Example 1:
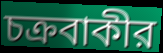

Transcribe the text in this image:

চক্রবাকীর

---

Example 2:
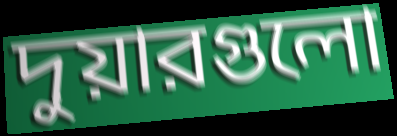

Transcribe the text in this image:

দুয়ারগুলো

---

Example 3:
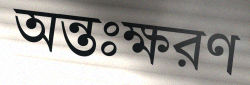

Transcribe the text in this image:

অন্তঃক্ষরণ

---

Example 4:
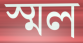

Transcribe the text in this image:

স্মল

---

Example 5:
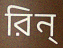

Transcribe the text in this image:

রিন্